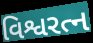
વિશ્વરત્ન